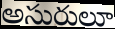
అసురులూ